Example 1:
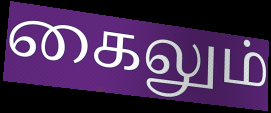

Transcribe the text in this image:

கைலும்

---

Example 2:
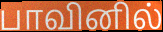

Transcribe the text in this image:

பாவினில்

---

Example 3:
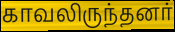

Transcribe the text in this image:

காவலிருந்தனர்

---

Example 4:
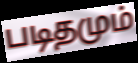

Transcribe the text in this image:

படிதமும்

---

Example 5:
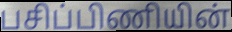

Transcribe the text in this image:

பசிப்பிணியின்